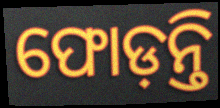
ଫୋଡ଼ନ୍ତି